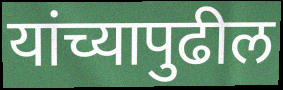
यांच्यापुढील